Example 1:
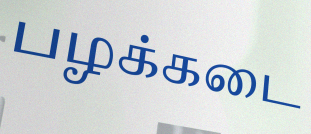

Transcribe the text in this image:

பழக்கடை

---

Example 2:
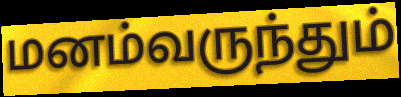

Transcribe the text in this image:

மனம்வருந்தும்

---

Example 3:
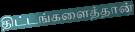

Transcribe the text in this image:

திட்டங்களைத்தான்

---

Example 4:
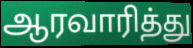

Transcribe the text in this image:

ஆரவாரித்து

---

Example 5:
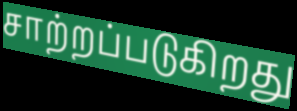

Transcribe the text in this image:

சாற்றப்படுகிறது